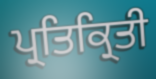
ਪ੍ਰਤਿਕ੍ਰਿਤੀ